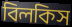
বিলকিস